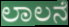
ಲಾಲನೆ